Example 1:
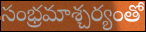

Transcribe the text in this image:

సంభ్రమాశ్చర్యంతో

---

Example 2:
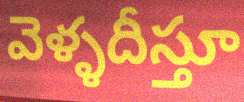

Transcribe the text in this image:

వెళ్ళదీస్తూ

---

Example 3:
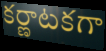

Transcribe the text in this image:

కర్ణాటకగా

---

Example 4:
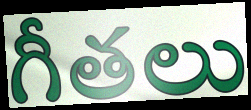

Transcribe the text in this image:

గీతలు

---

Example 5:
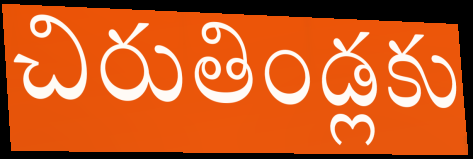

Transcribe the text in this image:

చిరుతిండ్లకు